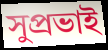
সুপ্রভাই